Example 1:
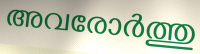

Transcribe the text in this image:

അവരോർത്തു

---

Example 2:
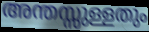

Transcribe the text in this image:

അന്തസ്സുള്ളതും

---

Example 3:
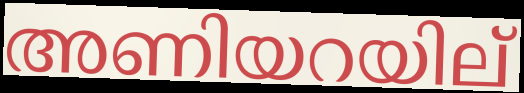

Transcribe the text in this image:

അണിയറയില്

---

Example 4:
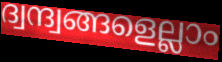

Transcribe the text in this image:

ദ്വന്ദ്വങ്ങളെല്ലാം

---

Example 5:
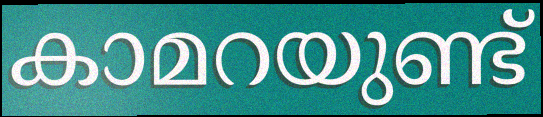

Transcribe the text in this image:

കാമറയുണ്ട്